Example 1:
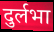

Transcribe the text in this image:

दुर्लभा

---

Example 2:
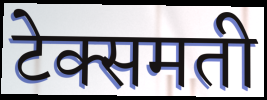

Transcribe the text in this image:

टेक्समती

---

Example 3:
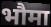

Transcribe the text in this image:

भौमा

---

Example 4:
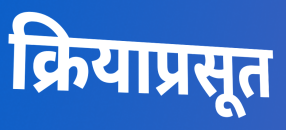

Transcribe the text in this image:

क्रियाप्रसूत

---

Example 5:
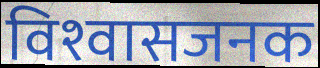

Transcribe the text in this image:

विश्वासजनक